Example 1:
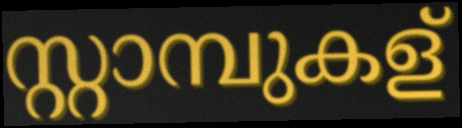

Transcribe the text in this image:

സ്റ്റാമ്പുകള്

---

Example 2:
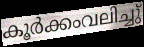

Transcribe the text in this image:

കൂർക്കംവലിച്ചു്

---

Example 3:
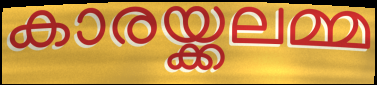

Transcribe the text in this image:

കാരയ്ക്കലമ്മ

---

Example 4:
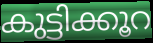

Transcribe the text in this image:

കുട്ടിക്കൂറ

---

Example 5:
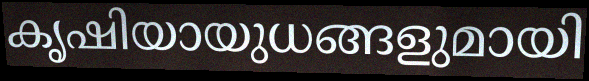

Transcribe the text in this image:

കൃഷിയായുധങ്ങളുമായി